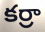
కర్రా